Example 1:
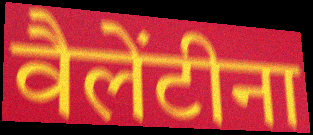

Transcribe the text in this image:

वैलेंटीना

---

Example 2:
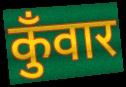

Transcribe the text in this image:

कुँवार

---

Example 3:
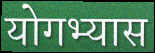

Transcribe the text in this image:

योगभ्यास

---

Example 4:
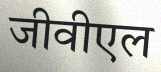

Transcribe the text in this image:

जीवीएल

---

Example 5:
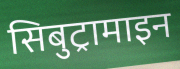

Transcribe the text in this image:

सिबुट्रामाइन